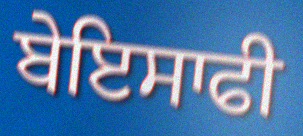
ਬੇਇਸਾਫੀ